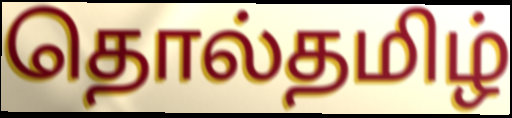
தொல்தமிழ்